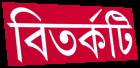
বিতর্কটি